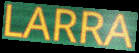
LARRA